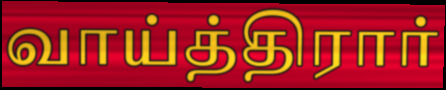
வாய்த்திரார்